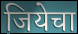
जियेचा